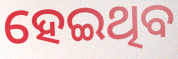
ହେଇଥିବ